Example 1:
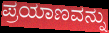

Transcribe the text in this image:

ಪ್ರಯಾಣವನ್ನು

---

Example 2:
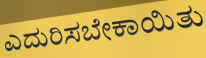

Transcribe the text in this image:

ಎದುರಿಸಬೇಕಾಯಿತು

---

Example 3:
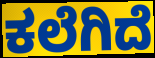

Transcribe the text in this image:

ಕಲೆಗಿದೆ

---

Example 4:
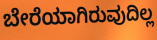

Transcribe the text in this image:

ಬೇರೆಯಾಗಿರುವುದಿಲ್ಲ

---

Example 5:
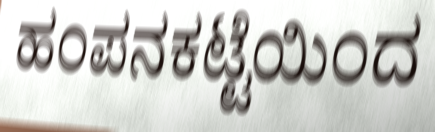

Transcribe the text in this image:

ಹಂಪನಕಟ್ಟೆಯಿಂದ